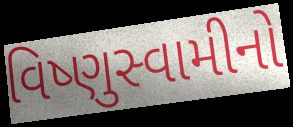
વિષ્ણુસ્વામીનો